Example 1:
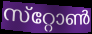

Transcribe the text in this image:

സ്‌റ്റോൺ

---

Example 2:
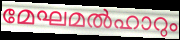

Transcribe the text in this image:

മേഘമൽഹാറും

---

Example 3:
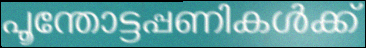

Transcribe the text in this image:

പൂന്തോട്ടപ്പണികൾക്ക്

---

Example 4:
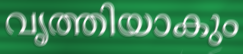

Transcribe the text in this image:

വൃത്തിയാകും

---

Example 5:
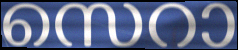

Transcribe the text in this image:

സെറാ